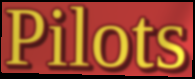
Pilots